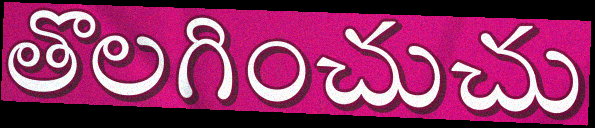
తొలగించుచు